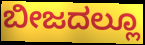
ಬೀಜದಲ್ಲೂ